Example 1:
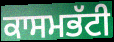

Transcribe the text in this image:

ਕਾਸਮਭੱਟੀ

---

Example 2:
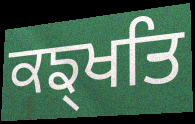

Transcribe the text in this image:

ਕਙ੍ਖਤਿ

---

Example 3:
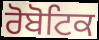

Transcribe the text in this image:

ਰੋਬੋਟਿਕ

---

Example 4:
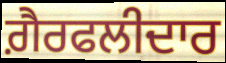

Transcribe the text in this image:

ਗ਼ੈਰਫਲੀਦਾਰ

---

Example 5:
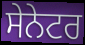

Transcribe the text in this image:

ਸੇਨੇਟਰ